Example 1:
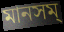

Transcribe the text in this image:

মানসম্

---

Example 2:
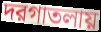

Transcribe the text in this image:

দরগাতলায়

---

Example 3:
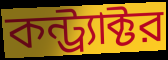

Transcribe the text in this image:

কন্ট্র্যাক্টর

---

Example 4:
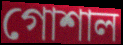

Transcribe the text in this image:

গোশাল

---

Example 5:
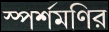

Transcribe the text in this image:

স্পর্শমণির